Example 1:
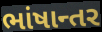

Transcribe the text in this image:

ભાંષાન્તર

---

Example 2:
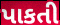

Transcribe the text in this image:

પાકતી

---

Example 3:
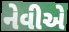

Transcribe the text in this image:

નેવીએ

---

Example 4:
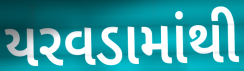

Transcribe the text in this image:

યરવડામાંથી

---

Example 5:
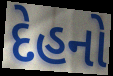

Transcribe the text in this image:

દેહનો